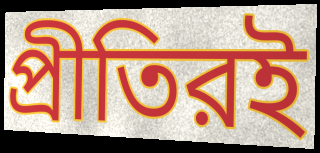
প্রীতিরই